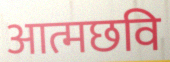
आत्मछवि